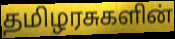
தமிழரசுகளின்